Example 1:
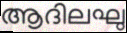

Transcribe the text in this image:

ആദിലഘു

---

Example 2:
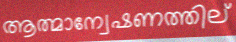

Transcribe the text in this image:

ആത്മാന്വേഷണത്തില്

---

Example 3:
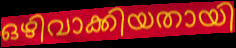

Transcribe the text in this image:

ഒഴിവാക്കിയതായി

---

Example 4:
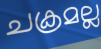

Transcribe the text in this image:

ചക്രമല്ല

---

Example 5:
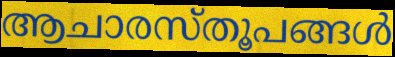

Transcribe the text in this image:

ആചാരസ്തൂപങ്ങൾ